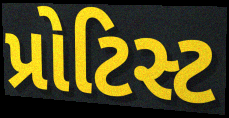
પ્રોટિસ્ટ